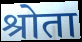
श्रोता